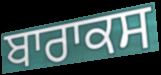
ਬਾਰਾਕਸ